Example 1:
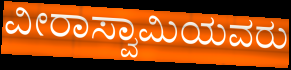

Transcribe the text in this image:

ವೀರಾಸ್ವಾಮಿಯವರು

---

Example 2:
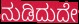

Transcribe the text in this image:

ನುಡಿದುದೇ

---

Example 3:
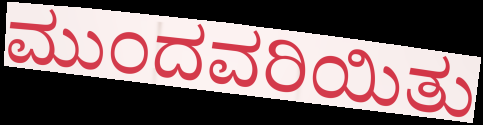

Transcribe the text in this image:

ಮುಂದವರಿಯಿತು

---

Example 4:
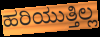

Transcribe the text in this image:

ಹರಿಯುತ್ತಿಲ್ಲ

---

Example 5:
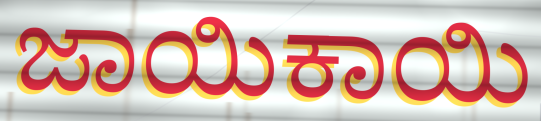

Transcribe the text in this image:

ಜಾಯಿಕಾಯಿ